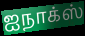
ஐநாக்ஸ்